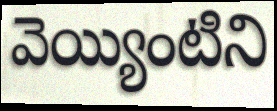
వెయ్యింటిని